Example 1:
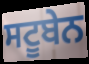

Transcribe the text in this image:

ਸਟੂਬੇਨ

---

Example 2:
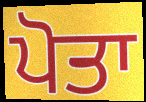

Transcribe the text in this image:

ਪੋਤਾ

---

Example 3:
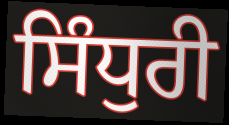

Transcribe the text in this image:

ਸਿੰਧੁਰੀ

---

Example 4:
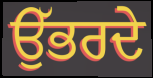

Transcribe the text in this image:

ਉੱਭਰਦੇ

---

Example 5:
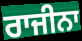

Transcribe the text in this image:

ਰਾਜੀਨਾ